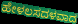
ಹೇಳಲಸದಳವಾದ